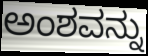
ಅಂಶವನ್ನು